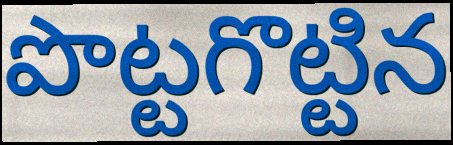
పొట్టగొట్టిన